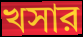
খসার